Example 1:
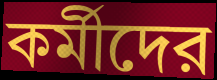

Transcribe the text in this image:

কর্মীদের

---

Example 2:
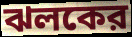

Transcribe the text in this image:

ঝলকের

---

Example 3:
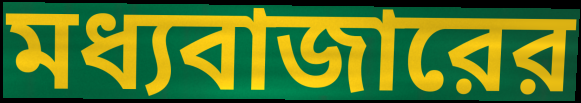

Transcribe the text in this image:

মধ্যবাজারের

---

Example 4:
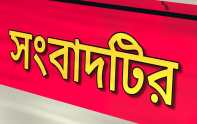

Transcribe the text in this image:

সংবাদটির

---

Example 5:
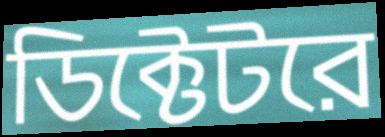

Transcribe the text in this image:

ডিক্টেটরে